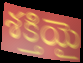
శక్తియై